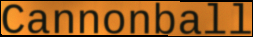
Cannonball